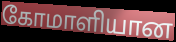
கோமாளியான